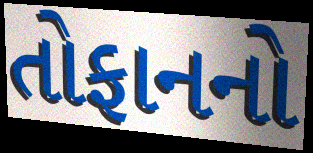
તોફાનનો